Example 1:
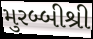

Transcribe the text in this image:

મુરબ્બીશ્રી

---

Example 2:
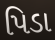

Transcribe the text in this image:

પિડા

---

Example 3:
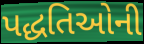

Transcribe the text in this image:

પદ્ધતિઓની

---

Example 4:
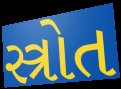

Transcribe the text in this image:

સ્ત્રોત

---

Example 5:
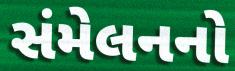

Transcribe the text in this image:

સંમેલનનો